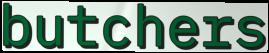
butchers